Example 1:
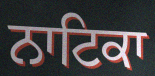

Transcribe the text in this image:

ਨਾਟਿਕਾ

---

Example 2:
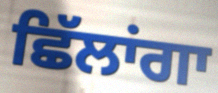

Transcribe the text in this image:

ਛਿੱਲਾਂਗਾ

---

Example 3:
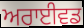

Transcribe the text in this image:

ਅਰਾਈਵਡ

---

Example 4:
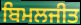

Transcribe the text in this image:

ਬਿਮਲਜੀਤ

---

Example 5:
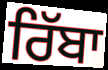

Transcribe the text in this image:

ਰਿੱਬਾ